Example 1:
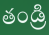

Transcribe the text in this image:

తండ్రి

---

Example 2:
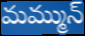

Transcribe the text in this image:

మమ్మున్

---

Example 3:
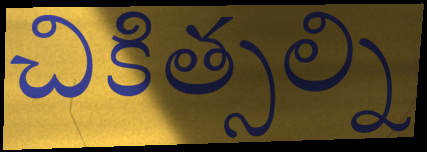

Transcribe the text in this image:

చికిత్సల్ని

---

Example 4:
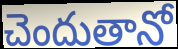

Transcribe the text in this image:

చెందుతానో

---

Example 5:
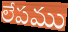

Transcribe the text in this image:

లేపము